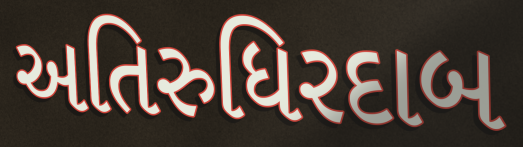
અતિરુધિરદાબ